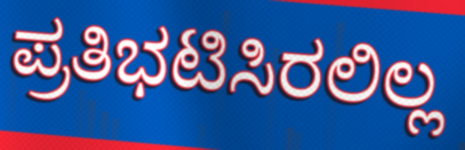
ಪ್ರತಿಭಟಿಸಿರಲಿಲ್ಲ